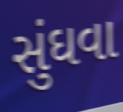
સુંઘવા